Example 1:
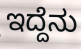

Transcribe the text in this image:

ಇದ್ದೆನು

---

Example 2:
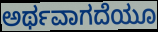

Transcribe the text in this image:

ಅರ್ಥವಾಗದೆಯೂ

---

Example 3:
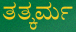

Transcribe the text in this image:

ತತ್ಕರ್ಮ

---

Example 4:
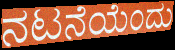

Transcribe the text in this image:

ನಟನೆಯೆಂದು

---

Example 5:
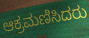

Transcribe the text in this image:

ಆಕ್ರಮಣಿಸಿದರು